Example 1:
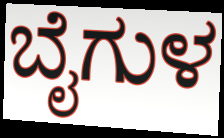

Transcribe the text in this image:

ಬೈಗುಳ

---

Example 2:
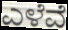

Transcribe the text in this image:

ಎಳೆವೆ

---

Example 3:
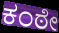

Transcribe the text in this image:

ಕಂಠೇ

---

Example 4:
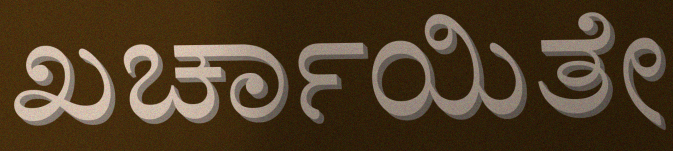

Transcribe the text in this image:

ಖರ್ಚಾಯಿತೇ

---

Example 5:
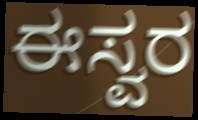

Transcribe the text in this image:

ಈಸ್ವರ